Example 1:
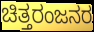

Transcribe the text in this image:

ಚಿತ್ತರಂಜನರ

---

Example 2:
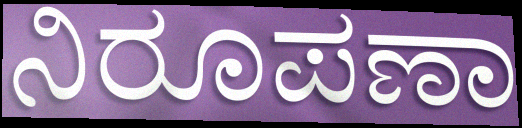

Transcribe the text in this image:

ನಿರೂಪಣಾ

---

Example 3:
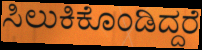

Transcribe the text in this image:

ಸಿಲುಕಿಕೊಂಡಿದ್ದರೆ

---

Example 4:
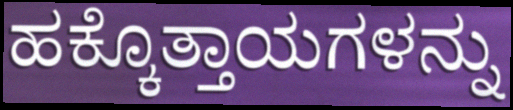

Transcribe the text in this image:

ಹಕ್ಕೊತ್ತಾಯಗಳನ್ನು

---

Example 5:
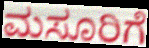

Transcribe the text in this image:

ಮಸೂರಿಗೆ